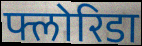
फ्लोरिडा